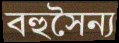
বহুসৈন্য